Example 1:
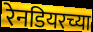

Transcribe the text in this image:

रेनडियरच्या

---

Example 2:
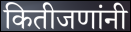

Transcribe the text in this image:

कितीजणांनी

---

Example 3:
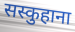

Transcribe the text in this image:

सस्कुहाना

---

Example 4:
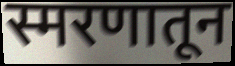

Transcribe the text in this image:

स्मरणातून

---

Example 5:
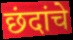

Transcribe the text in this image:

छंदांचे